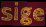
sige